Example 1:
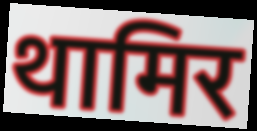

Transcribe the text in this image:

थामिर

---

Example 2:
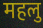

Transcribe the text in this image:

महलु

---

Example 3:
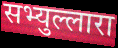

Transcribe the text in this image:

सभ्युल्लारा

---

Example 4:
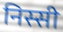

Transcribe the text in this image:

निस्सी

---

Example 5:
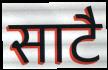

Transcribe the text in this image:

साटै